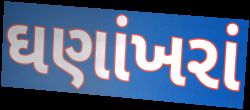
ઘણાંખરાં